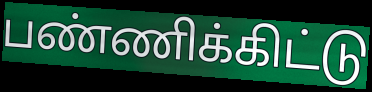
பண்ணிக்கிட்டு